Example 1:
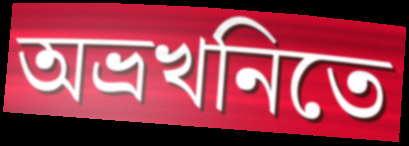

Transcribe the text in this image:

অভ্রখনিতে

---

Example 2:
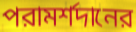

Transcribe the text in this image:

পরামর্শদানের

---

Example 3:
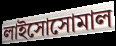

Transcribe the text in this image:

লাইসোসোমাল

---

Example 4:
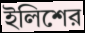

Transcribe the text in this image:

ইলিশের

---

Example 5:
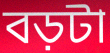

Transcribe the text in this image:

বড়টা